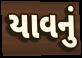
યાવનું